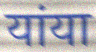
यांया